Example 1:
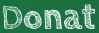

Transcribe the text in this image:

Donat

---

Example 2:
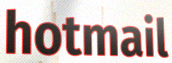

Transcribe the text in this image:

hotmail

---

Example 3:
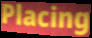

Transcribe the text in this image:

Placing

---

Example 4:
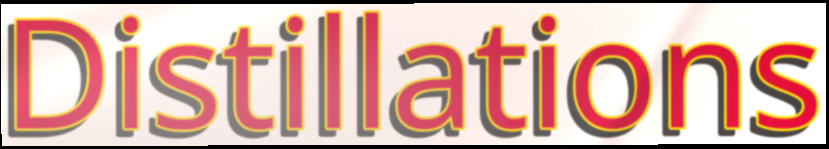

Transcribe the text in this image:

Distillations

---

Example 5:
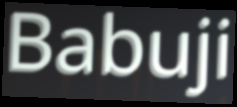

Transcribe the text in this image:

Babuji